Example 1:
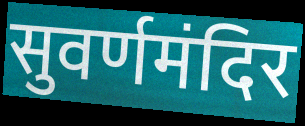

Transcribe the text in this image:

सुवर्णमंदिर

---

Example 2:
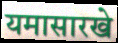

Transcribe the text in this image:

यमासारखे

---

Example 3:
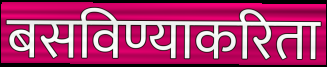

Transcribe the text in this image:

बसविण्याकरिता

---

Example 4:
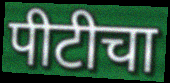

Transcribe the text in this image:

पीटीचा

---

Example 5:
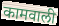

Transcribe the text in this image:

कामवाली